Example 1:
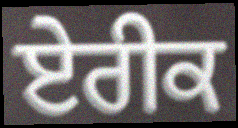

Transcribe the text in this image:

ਏਰੀਕ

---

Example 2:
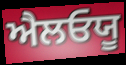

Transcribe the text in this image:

ਐਲਓਯੂ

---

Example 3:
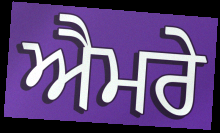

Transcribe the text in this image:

ਐਮਰੇ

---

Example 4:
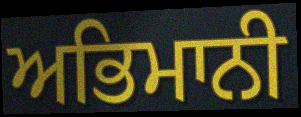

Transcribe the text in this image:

ਅਭਿਮਾਨੀ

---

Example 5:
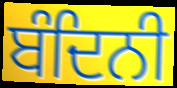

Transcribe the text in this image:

ਬੰਦਿਨੀ